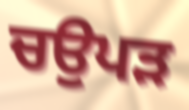
ਚਉਪੜ